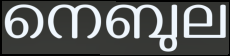
നെബുല